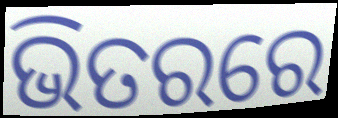
ଭିତରରେ